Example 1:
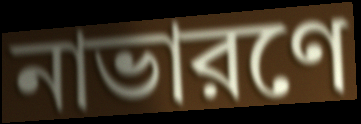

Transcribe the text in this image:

নাভারণে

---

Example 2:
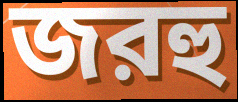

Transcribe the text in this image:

জরহু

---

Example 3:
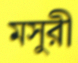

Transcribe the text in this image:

মসুরী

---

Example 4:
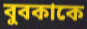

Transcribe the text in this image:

বুবকাকে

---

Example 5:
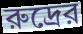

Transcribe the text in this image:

রুদ্রের